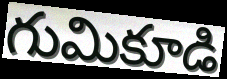
గుమికూడి